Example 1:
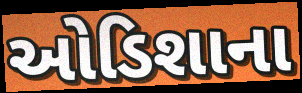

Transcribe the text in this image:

ઓડિશાના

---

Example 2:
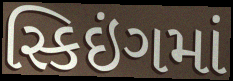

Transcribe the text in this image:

સ્કિઇંગમાં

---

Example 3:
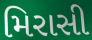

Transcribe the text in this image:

મિરાસી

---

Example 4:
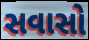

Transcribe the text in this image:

સવાસો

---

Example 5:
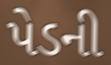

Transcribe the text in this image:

પેડની